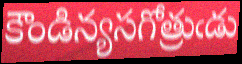
కౌండిన్యసగోత్రుఁడు